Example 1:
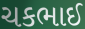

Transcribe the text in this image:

ચકભાઈ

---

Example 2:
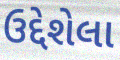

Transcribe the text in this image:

ઉદ્દેશેલા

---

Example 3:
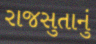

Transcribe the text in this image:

રાજસુતાનું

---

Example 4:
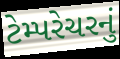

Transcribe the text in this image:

ટેમ્પરેચરનું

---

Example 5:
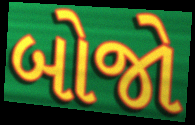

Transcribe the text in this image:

બોજો